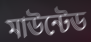
মাউন্টেড